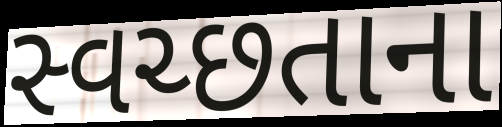
સ્વચ્છતાના